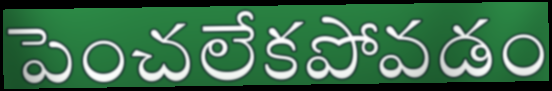
పెంచలేకపోవడం